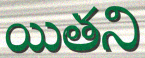
యితని